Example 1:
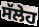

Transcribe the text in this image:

ਸੱਲੇਹ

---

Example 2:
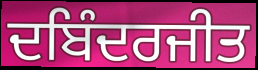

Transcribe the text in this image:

ਦਬਿੰਦਰਜੀਤ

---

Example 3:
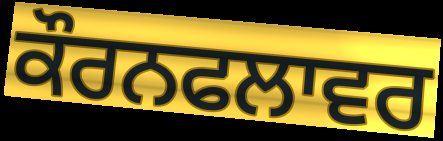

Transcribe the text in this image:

ਕੌਰਨਫਲਾਵਰ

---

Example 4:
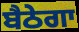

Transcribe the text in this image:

ਬੈਠੇਗਾ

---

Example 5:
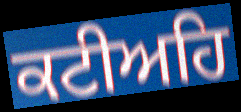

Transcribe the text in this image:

ਕਟੀਅਹਿ